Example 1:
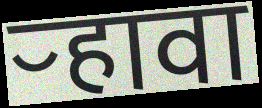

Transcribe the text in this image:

ऱ्हावा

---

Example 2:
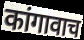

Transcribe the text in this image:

कांगावाच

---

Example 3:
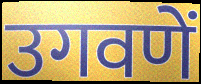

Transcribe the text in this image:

उगवणें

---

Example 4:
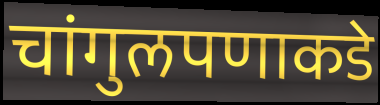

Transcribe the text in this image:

चांगुलपणाकडे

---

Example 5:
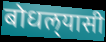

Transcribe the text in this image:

बोधल्यासी